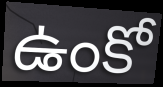
ఉంకో